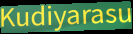
Kudiyarasu